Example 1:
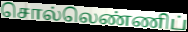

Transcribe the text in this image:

சொல்லெண்ணிப்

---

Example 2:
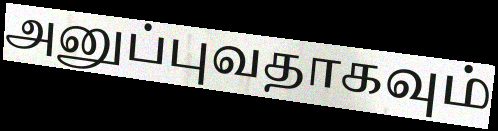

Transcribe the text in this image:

அனுப்புவதாகவும்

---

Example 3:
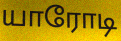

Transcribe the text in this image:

யாரோடி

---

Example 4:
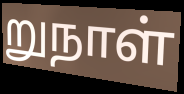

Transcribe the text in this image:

றுநாள்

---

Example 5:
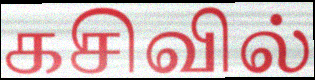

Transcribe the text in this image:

கசிவில்